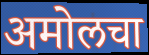
अमोलचा